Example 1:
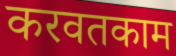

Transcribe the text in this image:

करवतकाम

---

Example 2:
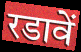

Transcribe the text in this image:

रडावें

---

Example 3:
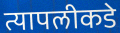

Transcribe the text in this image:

त्यापलीकडे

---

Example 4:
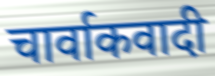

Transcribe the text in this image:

चार्वाकवादी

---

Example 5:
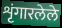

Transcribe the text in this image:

शृंगारलेले